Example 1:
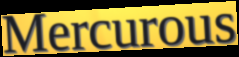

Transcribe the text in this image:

Mercurous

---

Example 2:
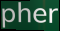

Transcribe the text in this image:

pher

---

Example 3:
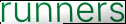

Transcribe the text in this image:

runners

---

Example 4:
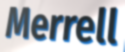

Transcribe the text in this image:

Merrell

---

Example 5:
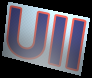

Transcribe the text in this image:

UII